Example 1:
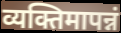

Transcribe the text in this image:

व्यक्तिमापन्नं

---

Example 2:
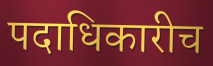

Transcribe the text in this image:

पदाधिकारीच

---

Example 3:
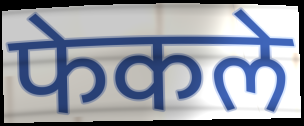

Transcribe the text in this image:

फेकले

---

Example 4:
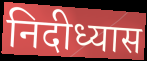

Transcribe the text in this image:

निदीध्यास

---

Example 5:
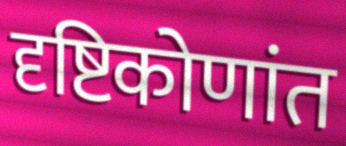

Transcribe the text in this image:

दृष्टिकोणांत